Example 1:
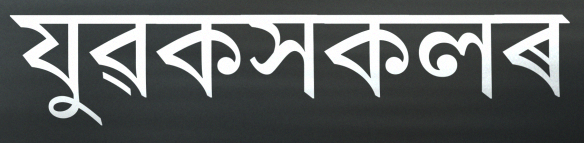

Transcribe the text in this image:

যুৱকসকলৰ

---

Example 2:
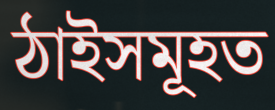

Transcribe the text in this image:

ঠাইসমূহত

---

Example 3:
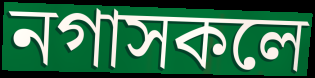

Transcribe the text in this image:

নগাসকলে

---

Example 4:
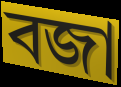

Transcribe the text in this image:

বজা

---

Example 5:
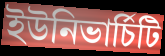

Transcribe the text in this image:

ইউনিভাৰ্চিটি